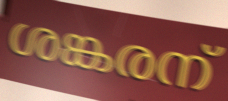
ശങ്കരന്